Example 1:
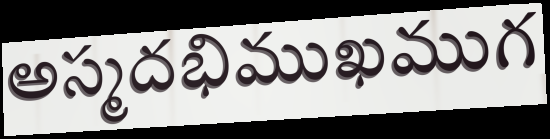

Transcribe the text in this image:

అస్మదభిముఖముగ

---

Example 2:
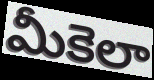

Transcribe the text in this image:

మీకెలా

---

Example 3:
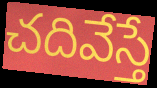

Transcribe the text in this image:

చదివేస్తే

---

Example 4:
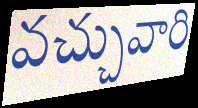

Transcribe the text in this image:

వచ్చువారి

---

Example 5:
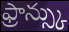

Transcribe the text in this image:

ఫ్రాన్స్కు